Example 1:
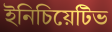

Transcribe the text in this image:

ইনিচিয়েটিভ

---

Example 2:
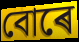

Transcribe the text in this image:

বোৰে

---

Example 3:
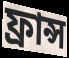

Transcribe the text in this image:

ফ্ৰান্স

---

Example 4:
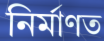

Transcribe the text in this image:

নিৰ্মাণত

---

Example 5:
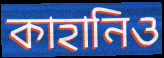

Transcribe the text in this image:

কাহানিও